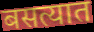
बसत्यात